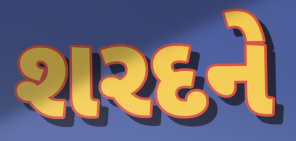
શરદને